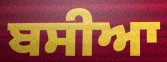
ਬਸੀਆ